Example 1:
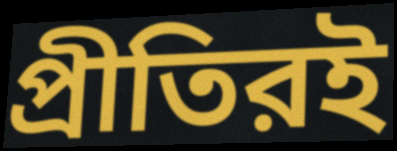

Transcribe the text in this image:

প্রীতিরই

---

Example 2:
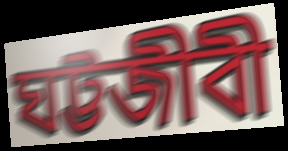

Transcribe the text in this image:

ঘট্টজীবী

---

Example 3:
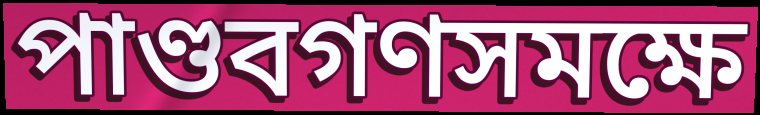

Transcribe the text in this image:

পাণ্ডবগণসমক্ষে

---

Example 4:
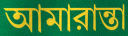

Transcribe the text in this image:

আমারান্তা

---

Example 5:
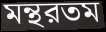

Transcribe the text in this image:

মন্থরতম